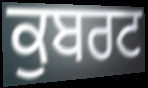
ਕੁਬਰਟ